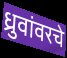
ध्रुवांवरचे